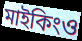
মাইকিংও